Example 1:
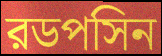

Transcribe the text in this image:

রডপসিন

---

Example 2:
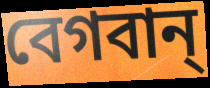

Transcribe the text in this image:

বেগবান্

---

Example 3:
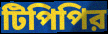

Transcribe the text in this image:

টিপিপির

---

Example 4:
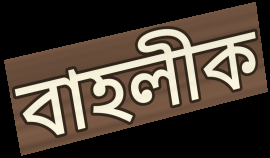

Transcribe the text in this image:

বাহলীক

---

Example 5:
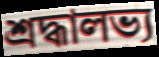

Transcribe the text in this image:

শ্রদ্ধালভ্য